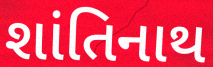
શાંતિનાથ